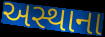
અસ્થાના